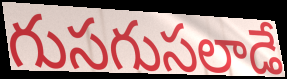
గుసగుసలాడే